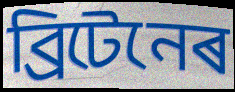
ব্ৰিটেনেৰ